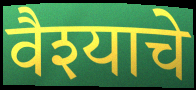
वैश्याचे